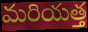
మరియత్త